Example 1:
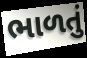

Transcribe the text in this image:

ભાળતું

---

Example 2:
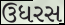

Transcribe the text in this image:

ઉધરસ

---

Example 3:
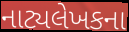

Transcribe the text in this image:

નાટ્યલેખકના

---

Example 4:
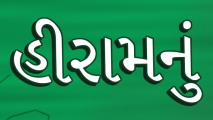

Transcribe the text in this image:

હીરામનું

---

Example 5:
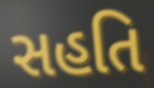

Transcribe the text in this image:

સહતિ